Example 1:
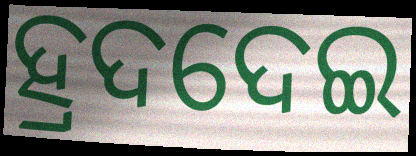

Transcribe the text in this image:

ହ୍ରଦଦେଇ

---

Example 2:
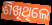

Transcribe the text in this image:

ଶିଖିଥିଲେ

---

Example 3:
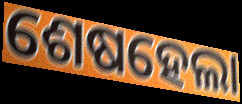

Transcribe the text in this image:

ଶେଷହେଲା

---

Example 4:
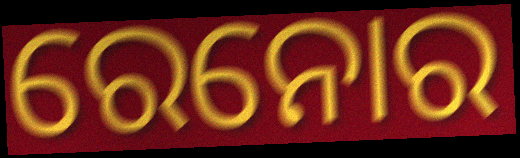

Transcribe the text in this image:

ରେନୋର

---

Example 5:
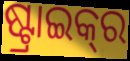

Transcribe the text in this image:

ଷ୍ଟ୍ରାଇକ୍‍ର